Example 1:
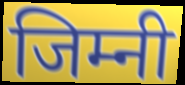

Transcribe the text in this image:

जिम्नी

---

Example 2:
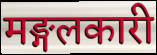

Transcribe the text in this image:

मङ्गलकारी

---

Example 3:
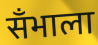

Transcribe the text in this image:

सँभाला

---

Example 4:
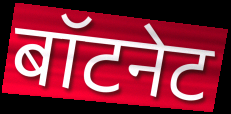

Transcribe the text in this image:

बॉटनेट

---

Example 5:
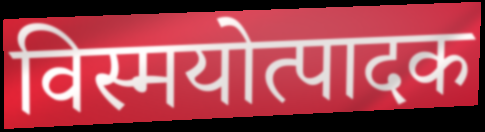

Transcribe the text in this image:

विस्मयोत्पादक